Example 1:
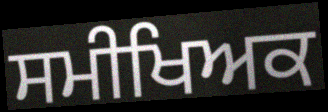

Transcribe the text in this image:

ਸਮੀਖਿਅਕ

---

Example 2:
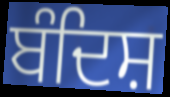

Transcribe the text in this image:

ਬੰਦਿਸ਼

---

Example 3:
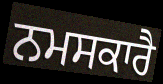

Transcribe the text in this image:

ਨਮਸਕਾਰੈ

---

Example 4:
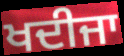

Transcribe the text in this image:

ਖਦੀਜਾ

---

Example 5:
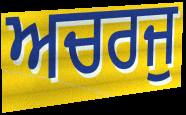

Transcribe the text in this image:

ਅਚਰਜੁ